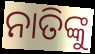
ନାତିଙ୍କୁ